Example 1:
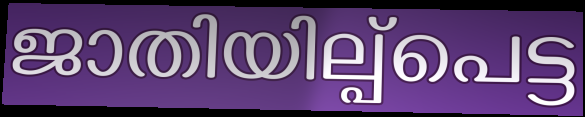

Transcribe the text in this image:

ജാതിയില്പ്പെട്ട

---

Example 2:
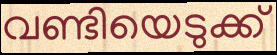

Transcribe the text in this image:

വണ്ടിയെടുക്ക്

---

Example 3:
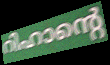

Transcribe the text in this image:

റിഹാന്റെ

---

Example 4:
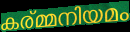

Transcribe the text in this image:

കര്മ്മനിയമം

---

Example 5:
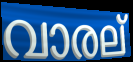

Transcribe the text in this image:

വാരല്